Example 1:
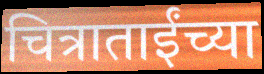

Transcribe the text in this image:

चित्राताईंच्या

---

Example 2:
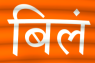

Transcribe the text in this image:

बिलं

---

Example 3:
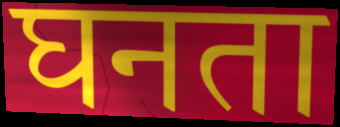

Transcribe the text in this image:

घनता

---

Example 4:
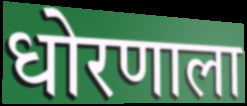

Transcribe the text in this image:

धोरणाला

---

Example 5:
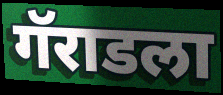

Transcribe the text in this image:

गॅराडला